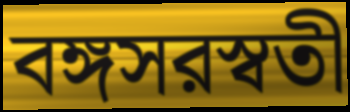
বঙ্গসরস্বতী